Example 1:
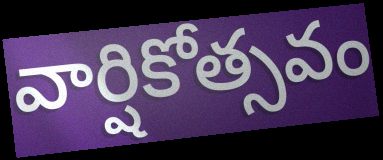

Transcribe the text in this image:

వార్షికోత్సవం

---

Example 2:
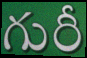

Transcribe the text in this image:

గురీ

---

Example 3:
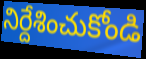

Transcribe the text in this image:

నిర్దేశించుకోండి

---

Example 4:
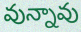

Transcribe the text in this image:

వున్నావు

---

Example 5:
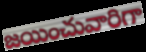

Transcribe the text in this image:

జయించువారిగా